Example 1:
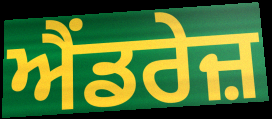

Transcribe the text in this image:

ਐਂਡਰੇਜ਼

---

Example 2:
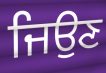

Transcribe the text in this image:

ਜਿਉਣ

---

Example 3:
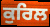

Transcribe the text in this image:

ਕੁਰਿਲ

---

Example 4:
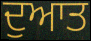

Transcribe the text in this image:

ਦੁਆਤ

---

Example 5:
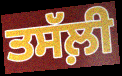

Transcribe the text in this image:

ਤਸੱਲ਼ੀ